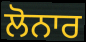
ਲੋਨਾਰ